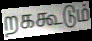
றககூடும்